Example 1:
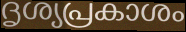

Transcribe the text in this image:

ദൃശ്യപ്രകാശം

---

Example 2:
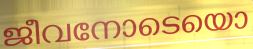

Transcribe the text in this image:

ജീവനോടെയൊ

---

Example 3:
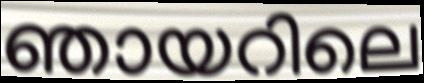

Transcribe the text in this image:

ഞായറിലെ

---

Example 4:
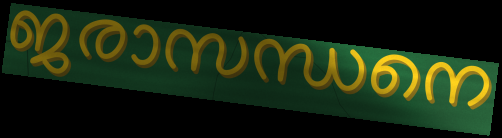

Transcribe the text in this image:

ജരാസന്ധനെ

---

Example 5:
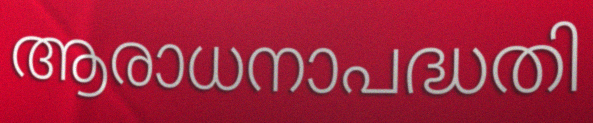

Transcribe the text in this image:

ആരാധനാപദ്ധതി